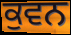
ਕੁਵਨ